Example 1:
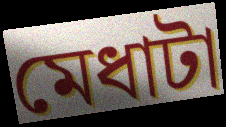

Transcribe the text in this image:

মেধাটা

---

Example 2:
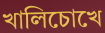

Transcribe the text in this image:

খালিচোখে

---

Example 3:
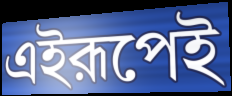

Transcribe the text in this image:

এইরূপেই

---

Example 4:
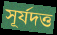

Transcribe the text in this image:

সূর্যদত্ত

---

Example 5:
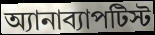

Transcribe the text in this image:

অ্যানাব্যাপটিস্ট